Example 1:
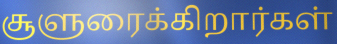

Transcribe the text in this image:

சூளுரைக்கிறார்கள்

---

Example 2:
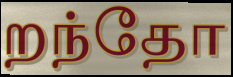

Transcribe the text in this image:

றந்தோ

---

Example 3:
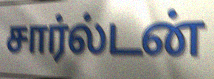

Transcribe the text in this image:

சார்ல்டன்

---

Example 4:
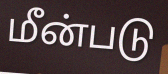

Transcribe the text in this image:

மீன்படு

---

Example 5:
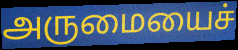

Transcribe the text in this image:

அருமையைச்